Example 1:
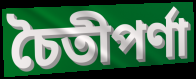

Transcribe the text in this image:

চৈতীপর্ণা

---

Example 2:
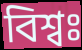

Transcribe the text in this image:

বিশ্বঃ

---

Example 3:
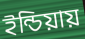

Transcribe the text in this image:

ইন্ডিয়ায়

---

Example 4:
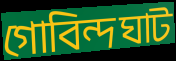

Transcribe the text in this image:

গোবিন্দঘাট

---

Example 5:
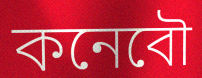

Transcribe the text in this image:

কনেবৌ